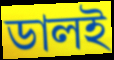
ডালই